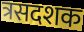
त्रसदशक